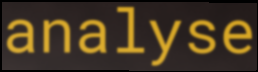
analyse